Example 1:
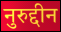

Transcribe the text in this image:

नुरुद्दीन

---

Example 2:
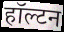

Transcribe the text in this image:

हॉल्टन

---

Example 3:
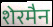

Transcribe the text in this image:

शेरमैन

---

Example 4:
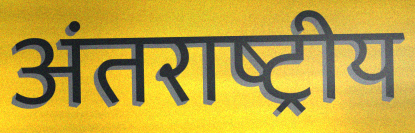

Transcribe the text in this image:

अंतराष्ट्रीय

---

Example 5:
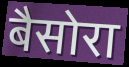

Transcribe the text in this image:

बैसोरा